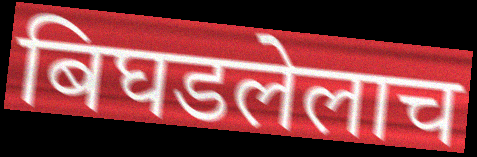
बिघडलेलाच